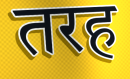
तरह